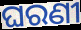
ଘରଣୀ